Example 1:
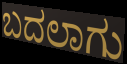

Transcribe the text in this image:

ಬದಲಾಗು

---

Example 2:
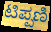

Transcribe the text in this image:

ಟಿಪ್ಪಣಿ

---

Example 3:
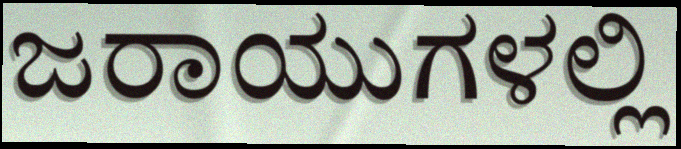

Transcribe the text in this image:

ಜರಾಯುಗಳಲ್ಲಿ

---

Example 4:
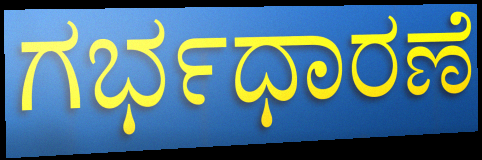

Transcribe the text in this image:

ಗರ್ಭಧಾರಣೆ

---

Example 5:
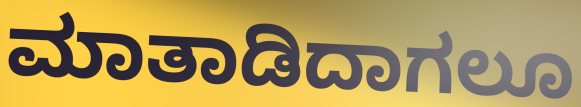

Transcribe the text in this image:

ಮಾತಾಡಿದಾಗಲೂ